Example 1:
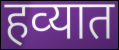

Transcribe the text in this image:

हव्‍यात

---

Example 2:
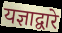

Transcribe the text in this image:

यज्ञाद्वारे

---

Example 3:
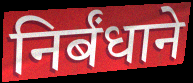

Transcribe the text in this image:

निर्बंधाने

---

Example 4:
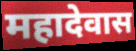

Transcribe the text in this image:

महादेवास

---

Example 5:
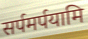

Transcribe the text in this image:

सर्पमर्पयामि